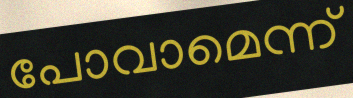
പോവാമെന്ന്